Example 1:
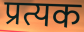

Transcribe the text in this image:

प्रत्यक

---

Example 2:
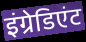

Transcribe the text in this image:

इंग्रेडिएंट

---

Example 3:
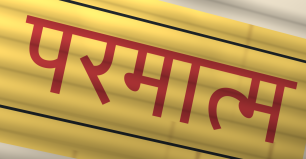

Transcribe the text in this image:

परमात्म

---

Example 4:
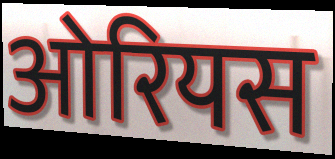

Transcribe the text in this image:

ओरियस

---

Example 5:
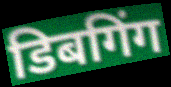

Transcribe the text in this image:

डिबगिंग